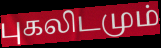
புகலிடமும்